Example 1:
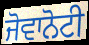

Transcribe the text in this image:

ਜੋਵਾਨੋਟੀ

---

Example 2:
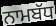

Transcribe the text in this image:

ਨਾਮਬੱਧ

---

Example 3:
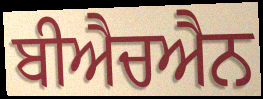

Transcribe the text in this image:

ਬੀਐਚਐਨ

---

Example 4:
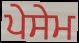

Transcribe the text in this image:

ਪੇਸੇਮ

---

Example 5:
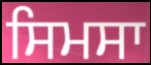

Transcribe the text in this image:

ਸਿਮਸਾ